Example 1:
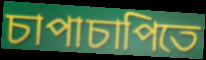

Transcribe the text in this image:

চাপাচাপিতে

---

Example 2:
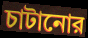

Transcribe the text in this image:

চাটানোর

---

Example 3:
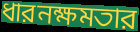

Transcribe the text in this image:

ধারনক্ষমতার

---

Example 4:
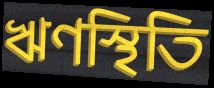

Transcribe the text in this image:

ঋণস্থিতি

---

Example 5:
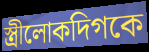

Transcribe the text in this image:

স্ত্রীলোকদিগকে